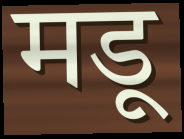
मडू